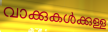
വാക്കുകൾക്കുള്ള